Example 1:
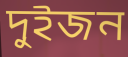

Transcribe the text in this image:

দুইজন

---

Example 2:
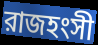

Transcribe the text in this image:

রাজহংসী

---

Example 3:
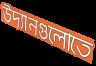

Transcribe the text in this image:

উদ্যানগুলোতে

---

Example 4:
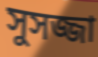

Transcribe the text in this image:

সুসজ্জা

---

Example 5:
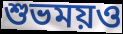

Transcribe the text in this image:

শুভময়ও